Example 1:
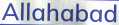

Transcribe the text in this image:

Allahabad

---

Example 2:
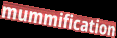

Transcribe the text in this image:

mummification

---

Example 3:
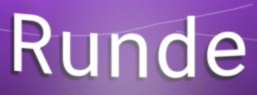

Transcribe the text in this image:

Runde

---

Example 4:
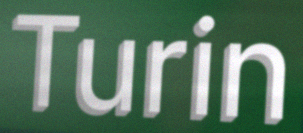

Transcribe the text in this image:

Turin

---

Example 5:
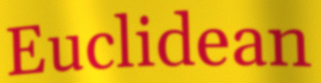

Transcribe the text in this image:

Euclidean